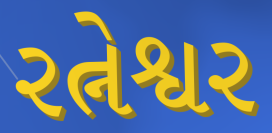
રત્નેશ્વર